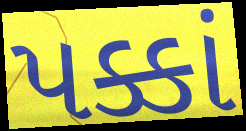
પક્કાં